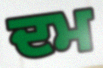
ਦਮ